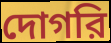
দোগরি